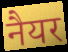
नैयर